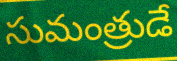
సుమంత్రుడే